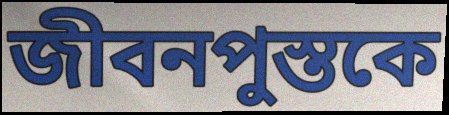
জীবনপুস্তকে